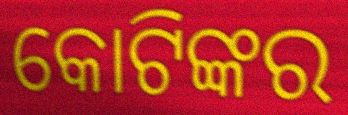
କୋଟିଙ୍କର